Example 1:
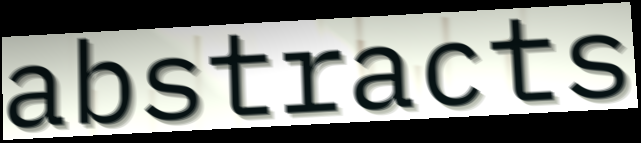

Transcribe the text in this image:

abstracts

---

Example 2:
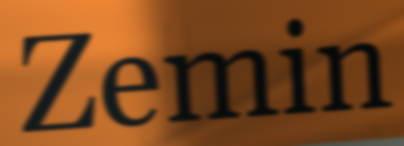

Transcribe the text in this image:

Zemin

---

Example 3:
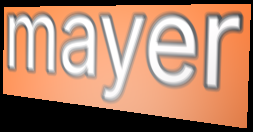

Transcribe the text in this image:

mayer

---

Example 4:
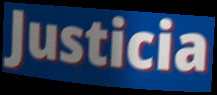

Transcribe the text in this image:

Justicia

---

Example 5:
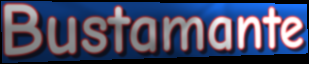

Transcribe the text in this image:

Bustamante